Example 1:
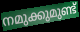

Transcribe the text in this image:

നമുക്കുമുണ്ട്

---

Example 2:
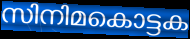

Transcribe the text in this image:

സിനിമകൊട്ടക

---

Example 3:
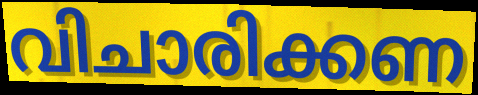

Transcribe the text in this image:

വിചാരിക്കണ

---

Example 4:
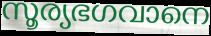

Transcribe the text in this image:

സൂര്യഭഗവാനെ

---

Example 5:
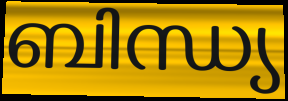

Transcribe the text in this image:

ബിന്ധ്യ